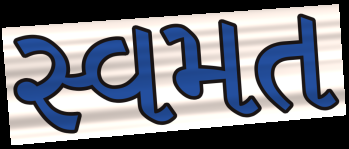
સ્વમત